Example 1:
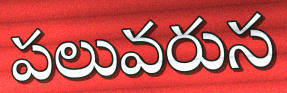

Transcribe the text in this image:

పలువరుస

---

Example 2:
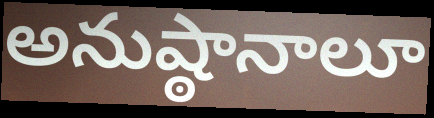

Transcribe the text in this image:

అనుష్ఠానాలూ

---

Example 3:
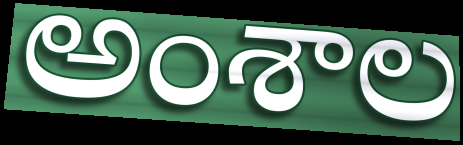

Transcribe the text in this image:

అంశాల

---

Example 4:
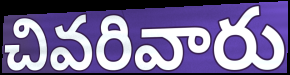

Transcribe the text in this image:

చివరివారు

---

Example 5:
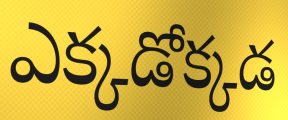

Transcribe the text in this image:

ఎక్కడోక్కడ